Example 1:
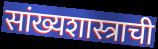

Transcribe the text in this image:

सांख्यशास्त्राची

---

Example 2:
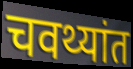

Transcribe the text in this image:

चवथ्यांत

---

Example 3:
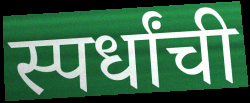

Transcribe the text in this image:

स्पर्धांची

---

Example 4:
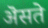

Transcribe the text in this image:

ऄसते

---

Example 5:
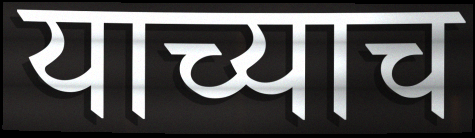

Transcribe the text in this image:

याच्याच